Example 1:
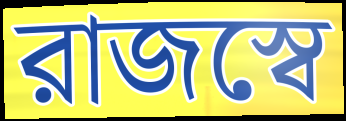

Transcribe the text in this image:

রাজস্বে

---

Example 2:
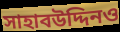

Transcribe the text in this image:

সাহাবউদ্দিনও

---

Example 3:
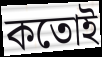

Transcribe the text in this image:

কতোই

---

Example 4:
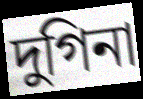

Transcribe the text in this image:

দুগিনা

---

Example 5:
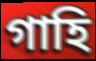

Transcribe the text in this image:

গাহি